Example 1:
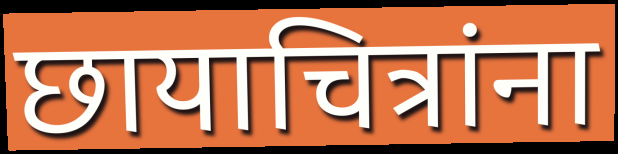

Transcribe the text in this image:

छायाचित्रांना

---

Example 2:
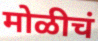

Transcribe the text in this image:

मोळीचं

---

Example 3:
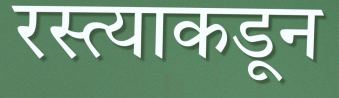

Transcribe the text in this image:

रस्त्याकडून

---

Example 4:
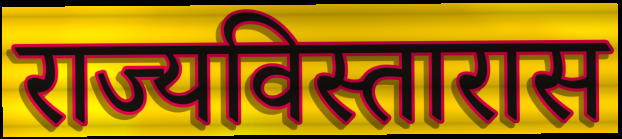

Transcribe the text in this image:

राज्यविस्तारास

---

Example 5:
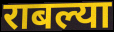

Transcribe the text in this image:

राबल्या